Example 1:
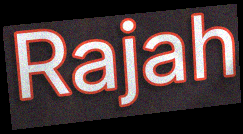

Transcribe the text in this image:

Rajah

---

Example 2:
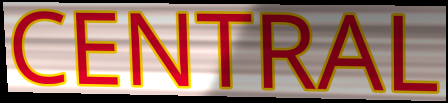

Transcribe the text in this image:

CENTRAL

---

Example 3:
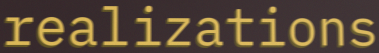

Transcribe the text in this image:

realizations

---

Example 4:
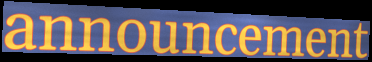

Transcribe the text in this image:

announcement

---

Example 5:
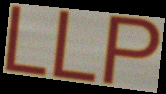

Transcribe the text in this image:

LLP